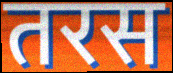
तरस